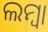
ଲମ୍ବା